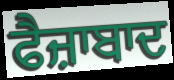
ਫੈਜ਼ਾਬਾਦ